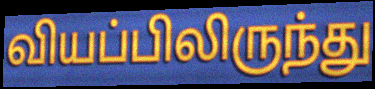
வியப்பிலிருந்து